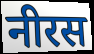
नीरस